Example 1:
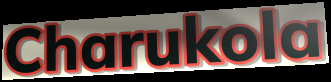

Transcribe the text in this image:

Charukola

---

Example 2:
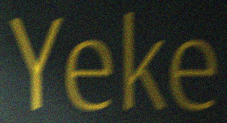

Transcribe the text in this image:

Yeke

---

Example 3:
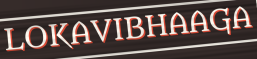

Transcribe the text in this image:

LOKAVIBHAAGA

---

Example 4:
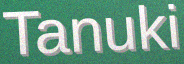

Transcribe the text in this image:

Tanuki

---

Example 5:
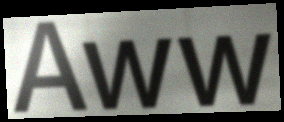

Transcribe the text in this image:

Aww